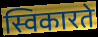
स्विकारते